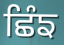
ਛਿੰਙ